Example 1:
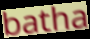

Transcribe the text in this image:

batha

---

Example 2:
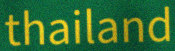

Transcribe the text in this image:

thailand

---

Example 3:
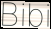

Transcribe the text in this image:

Bibi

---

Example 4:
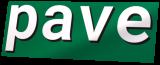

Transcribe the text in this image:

pave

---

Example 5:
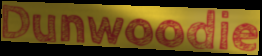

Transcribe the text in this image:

Dunwoodie